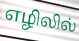
எழிலில்